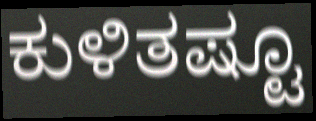
ಕುಳಿತಷ್ಟೂ